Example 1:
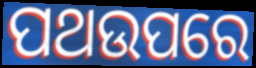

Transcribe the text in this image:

ପଥଉପରେ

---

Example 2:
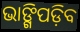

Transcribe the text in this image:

ଭାଙ୍ଗିପଡ଼ିବ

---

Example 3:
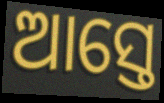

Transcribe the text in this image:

ଆସ୍ତେ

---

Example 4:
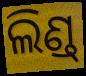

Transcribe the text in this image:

ଲିଣ୍ଡ୍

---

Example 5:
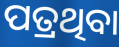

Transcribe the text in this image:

ପତ୍ରଥିବା